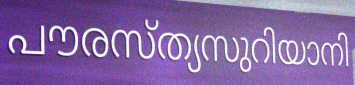
പൗരസ്ത്യസുറിയാനി